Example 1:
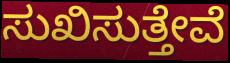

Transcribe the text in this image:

ಸುಖಿಸುತ್ತೇವೆ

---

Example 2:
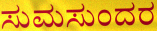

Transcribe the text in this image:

ಸುಮಸುಂದರ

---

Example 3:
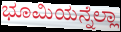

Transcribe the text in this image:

ಭೂಮಿಯನ್ನೆಲ್ಲಾ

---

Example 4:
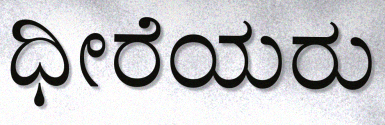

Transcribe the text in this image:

ಧೀರೆಯರು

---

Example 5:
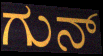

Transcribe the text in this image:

ಗುನ್